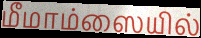
மீமாம்ஸையில்